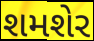
શમશેર